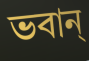
ভবান্